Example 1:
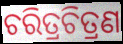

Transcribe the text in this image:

ଚରିତ୍ରଚିତ୍ରଣ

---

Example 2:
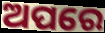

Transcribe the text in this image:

ଅପରେ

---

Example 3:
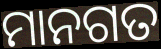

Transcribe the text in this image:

ମାନଗତ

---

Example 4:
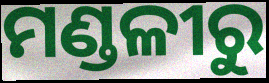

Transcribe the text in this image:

ମଣ୍ଡଳୀରୁ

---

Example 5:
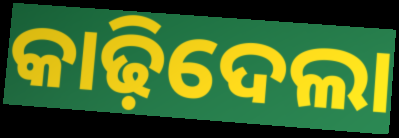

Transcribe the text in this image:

କାଢ଼ିଦେଲା